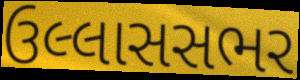
ઉલ્લાસસભર